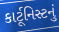
કાર્ટૂનિસ્ટનું